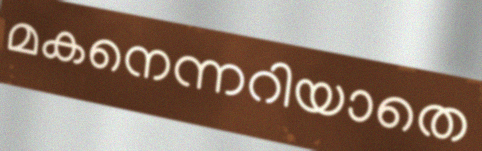
മകനെന്നറിയാതെ